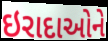
ઇરાદાઓને